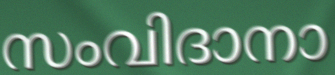
സംവിദാനാ